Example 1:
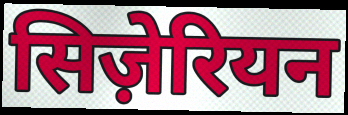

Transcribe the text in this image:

सिज़ेरियन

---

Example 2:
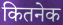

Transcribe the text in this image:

कितनेक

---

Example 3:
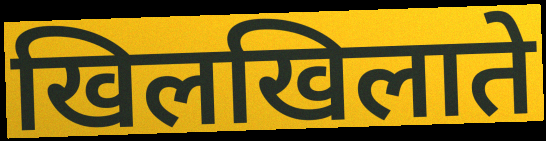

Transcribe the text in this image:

खिलखिलाते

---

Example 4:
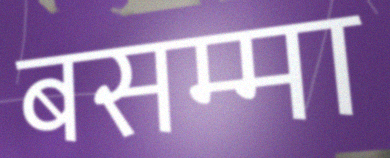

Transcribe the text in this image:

बसम्मा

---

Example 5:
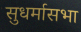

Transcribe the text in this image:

सुधर्मासभा